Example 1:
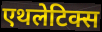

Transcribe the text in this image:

एथलेटिक्स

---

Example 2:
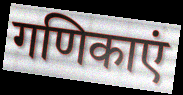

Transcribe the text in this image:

गणिकाएं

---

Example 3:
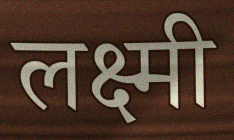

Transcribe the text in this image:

लक्ष्मी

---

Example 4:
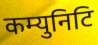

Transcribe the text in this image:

कम्युनिटि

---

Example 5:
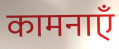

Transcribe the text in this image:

कामनाएँ